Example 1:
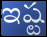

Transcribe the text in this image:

ఇష్ట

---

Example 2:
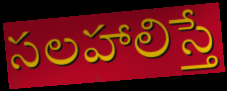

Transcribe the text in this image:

సలహాలిస్తే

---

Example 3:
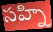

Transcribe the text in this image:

సహ్ని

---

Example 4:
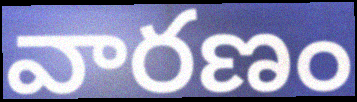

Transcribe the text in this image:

వారణం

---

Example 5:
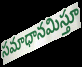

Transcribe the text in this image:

సమాధానమిస్తూ